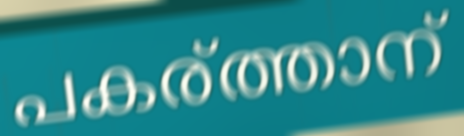
പകര്ത്താന്